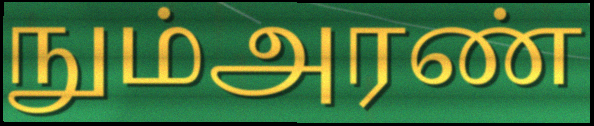
நும்அரண்